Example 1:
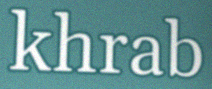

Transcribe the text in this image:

khrab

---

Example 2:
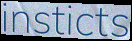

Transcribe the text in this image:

insticts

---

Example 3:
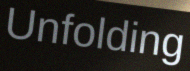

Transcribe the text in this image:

Unfolding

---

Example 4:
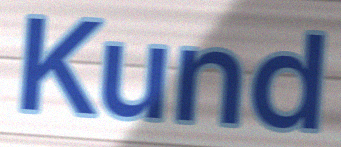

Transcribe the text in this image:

Kund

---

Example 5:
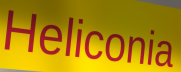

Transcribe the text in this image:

Heliconia